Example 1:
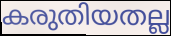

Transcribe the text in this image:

കരുതിയതല്ല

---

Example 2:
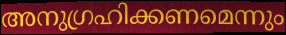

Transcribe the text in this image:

അനുഗ്രഹിക്കണമെന്നും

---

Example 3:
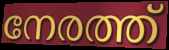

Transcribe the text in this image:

നേരത്ത്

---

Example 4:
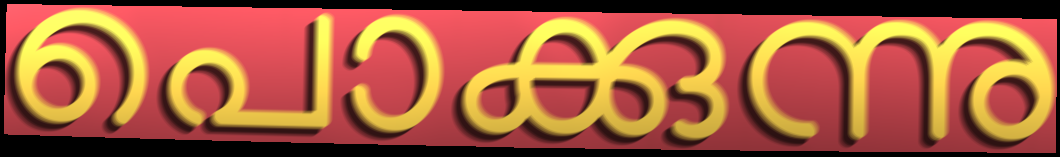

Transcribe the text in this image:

പൊക്കുന്നു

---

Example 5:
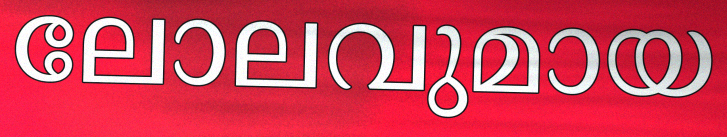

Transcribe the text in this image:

ലോലവുമായ